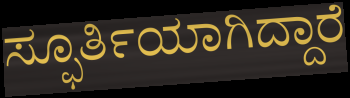
ಸ್ಫೂರ್ತಿಯಾಗಿದ್ದಾರೆ